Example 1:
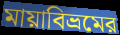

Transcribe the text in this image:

মায়াবিভ্রমের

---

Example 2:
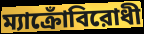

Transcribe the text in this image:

ম্যাক্রোঁবিরোধী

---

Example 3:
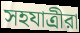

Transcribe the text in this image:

সহযাত্রীরা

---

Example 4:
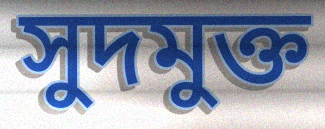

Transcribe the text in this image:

সুদমুক্ত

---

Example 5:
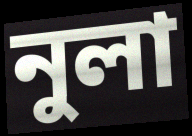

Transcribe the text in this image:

নুলা